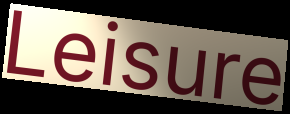
Leisure